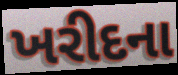
ખરીદના